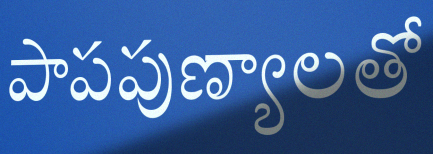
పాపపుణ్యాలతో